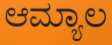
ಆಮ್ಯಾಲ